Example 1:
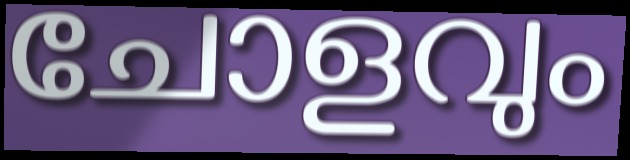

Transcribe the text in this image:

ചോളവും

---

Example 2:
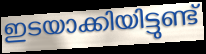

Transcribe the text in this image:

ഇടയാക്കിയിട്ടുണ്ട്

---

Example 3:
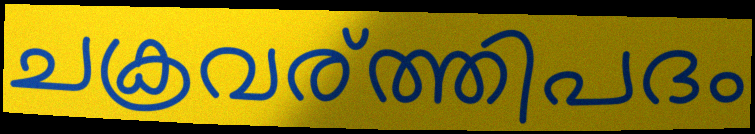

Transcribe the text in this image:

ചക്രവര്ത്തിപദം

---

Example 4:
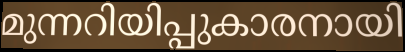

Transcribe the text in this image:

മുന്നറിയിപ്പുകാരനായി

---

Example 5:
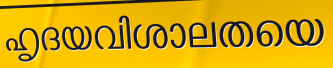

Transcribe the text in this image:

ഹൃദയവിശാലതയെ